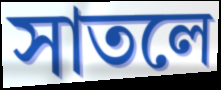
সাতলে